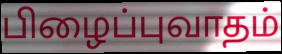
பிழைப்புவாதம்